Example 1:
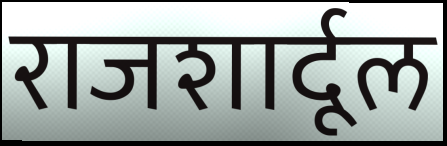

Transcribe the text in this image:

राजशार्दूल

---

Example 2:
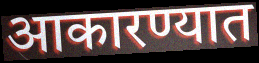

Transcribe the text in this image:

आकारण्यात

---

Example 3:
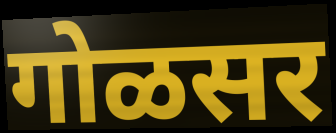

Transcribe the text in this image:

गोळसर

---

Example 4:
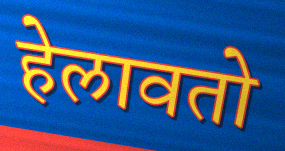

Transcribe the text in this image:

हेलावतो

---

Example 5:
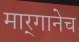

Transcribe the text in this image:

मार्गानेच